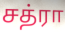
சத்ரா